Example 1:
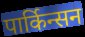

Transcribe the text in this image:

पार्किन्सन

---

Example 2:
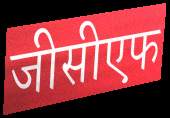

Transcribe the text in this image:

जीसीएफ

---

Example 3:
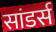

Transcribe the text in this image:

सांडर्स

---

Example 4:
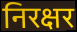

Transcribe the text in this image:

निरक्षर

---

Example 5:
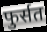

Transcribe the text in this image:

फुर्सत